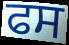
ਫਸ